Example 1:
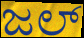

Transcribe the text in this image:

ಜಲ್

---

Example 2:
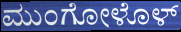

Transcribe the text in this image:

ಮುಂಗೋಳೊಳ್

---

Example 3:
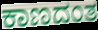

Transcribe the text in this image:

ಕಾಣದಂತ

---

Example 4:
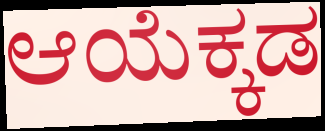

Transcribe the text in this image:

ಆಯೆಕ್ಕಡ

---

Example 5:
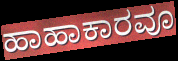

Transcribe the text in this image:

ಹಾಹಾಕಾರವೂ